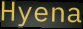
Hyena